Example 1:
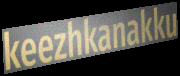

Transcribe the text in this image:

keezhkanakku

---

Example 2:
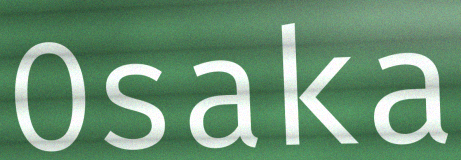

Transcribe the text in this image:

Osaka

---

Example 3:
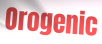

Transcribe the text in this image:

Orogenic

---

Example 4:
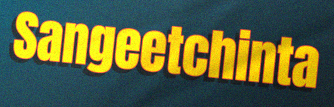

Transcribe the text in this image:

Sangeetchinta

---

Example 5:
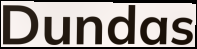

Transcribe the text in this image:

Dundas